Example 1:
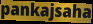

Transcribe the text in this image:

pankajsaha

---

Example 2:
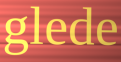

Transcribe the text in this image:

glede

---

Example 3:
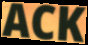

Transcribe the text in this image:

ACK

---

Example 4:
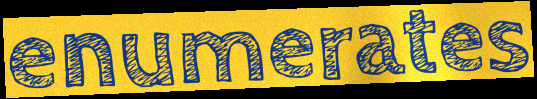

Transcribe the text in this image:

enumerates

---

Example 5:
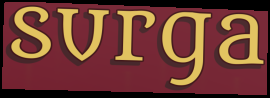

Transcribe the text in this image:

surga